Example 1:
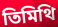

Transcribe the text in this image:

তিমিথি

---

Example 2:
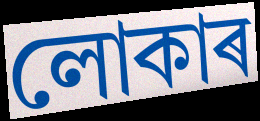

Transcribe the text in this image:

লোকাৰ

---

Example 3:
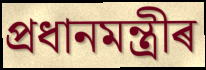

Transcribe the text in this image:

প্ৰধানমন্ত্ৰীৰ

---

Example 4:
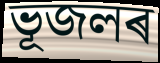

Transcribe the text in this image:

ভূজলৰ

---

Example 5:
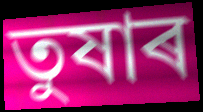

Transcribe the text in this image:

তুষাৰ